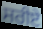
ਸਰੀਏ